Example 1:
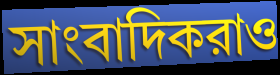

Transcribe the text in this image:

সাংবাদিকরাও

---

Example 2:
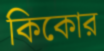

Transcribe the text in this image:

কিকোর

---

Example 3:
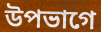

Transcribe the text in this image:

উপভাগে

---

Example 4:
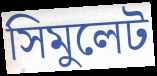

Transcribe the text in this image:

সিমুলেট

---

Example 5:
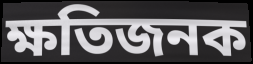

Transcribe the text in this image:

ক্ষতিজনক